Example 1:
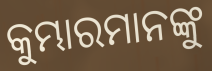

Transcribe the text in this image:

କୁମ୍ଭାରମାନଙ୍କୁ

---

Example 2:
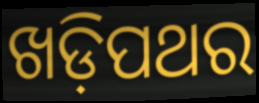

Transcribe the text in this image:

ଖଡ଼ିପଥର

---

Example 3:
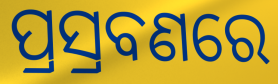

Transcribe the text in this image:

ପ୍ରସ୍ରବଣରେ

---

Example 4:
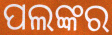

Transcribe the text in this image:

ପଲଙ୍କର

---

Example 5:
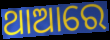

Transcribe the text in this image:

ଥାଆରେ